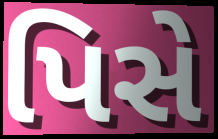
પિસે